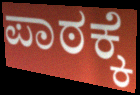
ಪಾಠಕ್ಕೆ